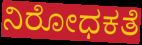
ನಿರೋಧಕತೆ